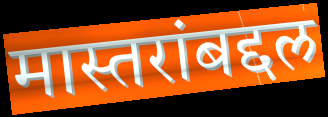
मास्तरांबद्दल